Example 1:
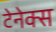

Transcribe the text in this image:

टेनेक्स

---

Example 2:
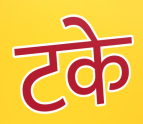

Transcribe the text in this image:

टके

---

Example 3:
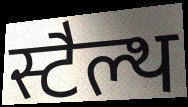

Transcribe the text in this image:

स्टैल्थ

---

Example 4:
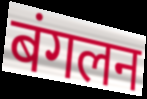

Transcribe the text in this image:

बंगलन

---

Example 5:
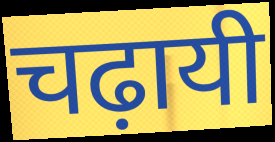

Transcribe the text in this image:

चढ़ायी